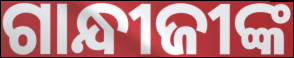
ଗାନ୍ଧୀଜୀଙ୍କ